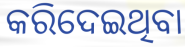
କରିଦେଇଥିବା